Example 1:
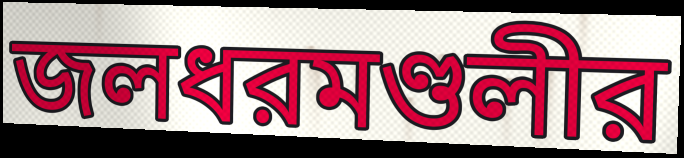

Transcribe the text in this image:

জলধরমণ্ডলীর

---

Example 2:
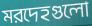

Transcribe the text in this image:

মরদেহগুলো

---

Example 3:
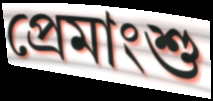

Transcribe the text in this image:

প্রেমাংশু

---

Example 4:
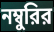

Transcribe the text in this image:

নম্বুরির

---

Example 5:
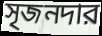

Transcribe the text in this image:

সৃজনদার